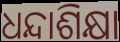
ଧନ୍ଦାଶିକ୍ଷା